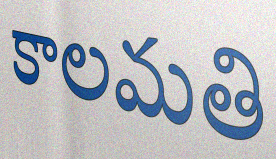
కాలమతి